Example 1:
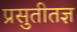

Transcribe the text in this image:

प्रसुतीतज्ञ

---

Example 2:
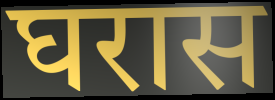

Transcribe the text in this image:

घरास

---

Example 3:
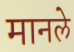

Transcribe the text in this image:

मानले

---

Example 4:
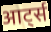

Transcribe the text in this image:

आर्ट्स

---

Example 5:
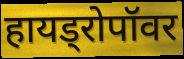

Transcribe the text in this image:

हायड्रोपॉवर